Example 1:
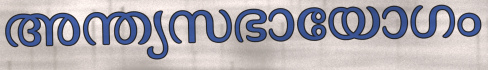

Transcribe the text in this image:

അന്ത്യസഭായോഗം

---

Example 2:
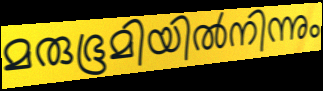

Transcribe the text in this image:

മരുഭൂമിയിൽനിന്നും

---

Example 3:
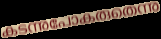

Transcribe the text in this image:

കടന്നുപോകരുതെന്നു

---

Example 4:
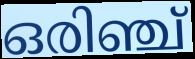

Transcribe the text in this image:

ഒരിഞ്ച്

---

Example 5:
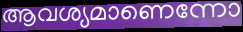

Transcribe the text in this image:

ആവശ്യമാണെന്നോ